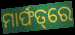
ମାର୍ଫତ୍‌ରେ